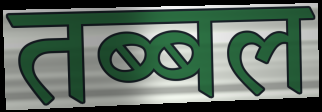
तब्बल